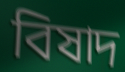
বিষাদ